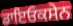
ਡਾਇਓਕਸੇਨ